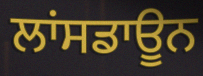
ਲਾਂਸਡਾਊਨ